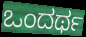
ಒಂದರ್ಥ